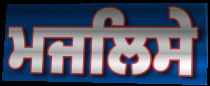
ਮਜਲਿਸੇ